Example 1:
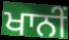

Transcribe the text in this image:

ਖਾਨੀਂ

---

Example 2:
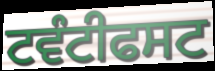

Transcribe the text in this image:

ਟਵੰਟੀਫਸਟ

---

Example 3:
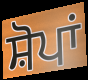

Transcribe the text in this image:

ਸ਼ੋਪਾਂ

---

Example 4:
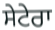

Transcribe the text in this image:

ਸੇਟੇਰਾ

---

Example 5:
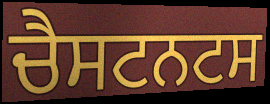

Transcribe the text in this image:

ਚੈਸਟਨਟਸ